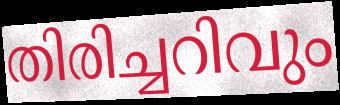
തിരിച്ചറിവും